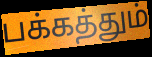
பக்கத்தும்